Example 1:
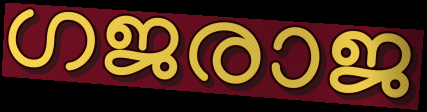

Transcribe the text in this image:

ഗജരാജ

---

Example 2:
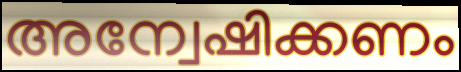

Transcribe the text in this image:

അന്വേഷിക്കണം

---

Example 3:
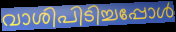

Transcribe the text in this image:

വാശിപിടിച്ചപ്പോൾ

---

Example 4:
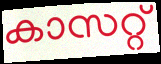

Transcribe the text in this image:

കാസറ്റ്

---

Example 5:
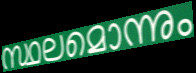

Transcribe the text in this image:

സ്ഥലമൊന്നും